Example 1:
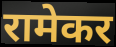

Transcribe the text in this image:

रामेकर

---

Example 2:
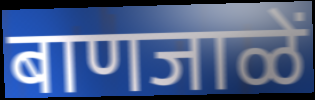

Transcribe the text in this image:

बाणजाळें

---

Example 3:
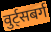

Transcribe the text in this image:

वुर्ट्सबर्ग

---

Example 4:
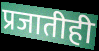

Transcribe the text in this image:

प्रजातीही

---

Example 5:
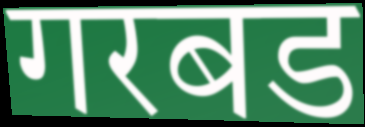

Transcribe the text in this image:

गरबड